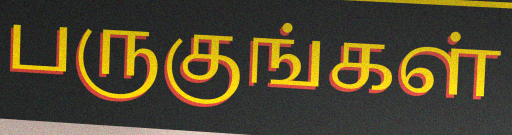
பருகுங்கள்